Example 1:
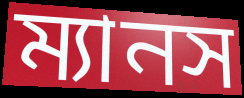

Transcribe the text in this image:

ম্যানস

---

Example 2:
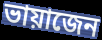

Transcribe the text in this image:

ভায়াজেন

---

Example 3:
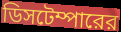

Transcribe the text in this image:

ডিসটেম্পারের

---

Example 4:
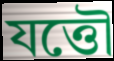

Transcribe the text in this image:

যত্তৌ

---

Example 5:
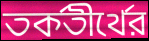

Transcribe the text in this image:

তর্কতীর্থের